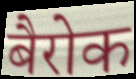
बैरोक